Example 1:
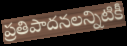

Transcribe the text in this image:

ప్రతిపాదనలన్నిటికీ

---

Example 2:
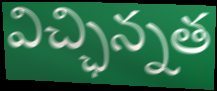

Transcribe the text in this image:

విచ్ఛిన్నత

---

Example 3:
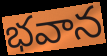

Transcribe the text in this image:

భవాన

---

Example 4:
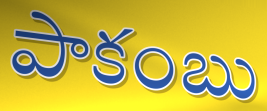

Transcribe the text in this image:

పాకంబు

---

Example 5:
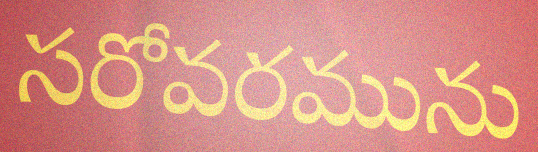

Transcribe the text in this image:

సరోవరమును